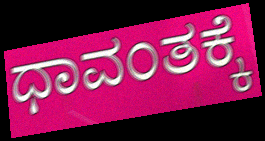
ಧಾವಂತಕ್ಕೆ